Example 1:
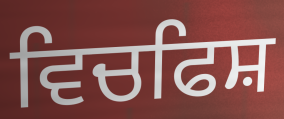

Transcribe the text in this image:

ਵਿਚਫਿਸ਼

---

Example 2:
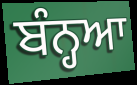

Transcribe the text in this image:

ਬੰਨ੍ਹਆ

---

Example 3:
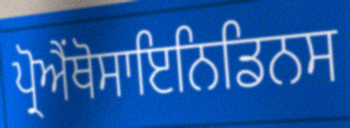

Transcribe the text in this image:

ਪ੍ਰੋਐਂਥੋਸਾਇਨਿਡਿਨਸ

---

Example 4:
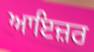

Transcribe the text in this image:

ਆਇਜ਼ਰ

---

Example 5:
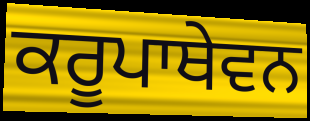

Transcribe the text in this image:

ਕਰੂਪਾਥੇਵਨ